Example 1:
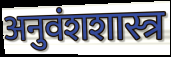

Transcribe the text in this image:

अनुवंशशास्त्र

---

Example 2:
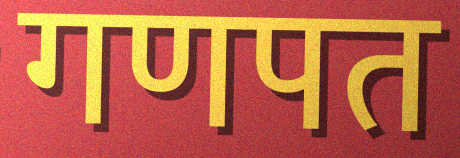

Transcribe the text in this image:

गणपत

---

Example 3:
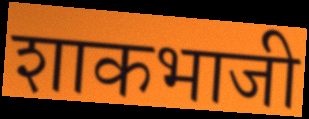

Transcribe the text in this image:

शाकभाजी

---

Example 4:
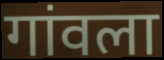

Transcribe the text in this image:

गांवला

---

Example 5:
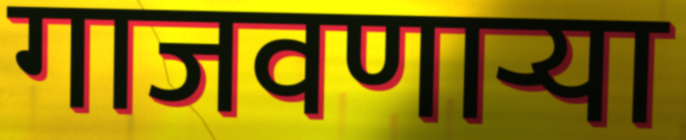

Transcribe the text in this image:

गाजवणाऱ्या